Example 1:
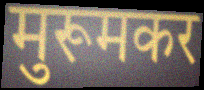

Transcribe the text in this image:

मुरूमकर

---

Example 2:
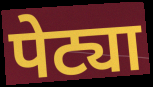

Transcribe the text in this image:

पेट्या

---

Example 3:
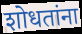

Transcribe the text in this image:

शोधतांना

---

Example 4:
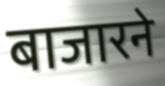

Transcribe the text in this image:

बाजारने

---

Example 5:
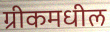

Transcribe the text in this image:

ग्रीकमधील